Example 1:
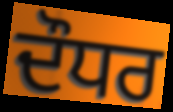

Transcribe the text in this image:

ਦੌਧਰ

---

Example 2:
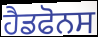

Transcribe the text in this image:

ਹੈਡਫੋਨਸ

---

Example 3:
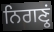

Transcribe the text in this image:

ਨਿਗਣ੍ਠਂ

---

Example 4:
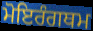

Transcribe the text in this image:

ਮੋਇਰੰਗਥਮ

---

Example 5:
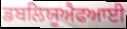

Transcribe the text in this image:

ਡਬਲਿਯੂਐਫਆਈ